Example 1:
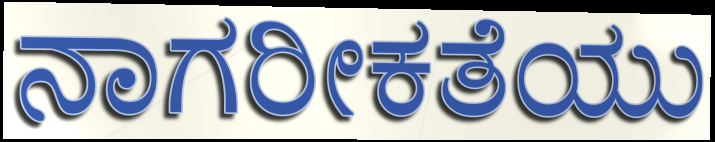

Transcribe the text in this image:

ನಾಗರೀಕತೆಯು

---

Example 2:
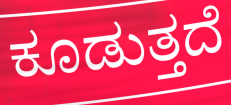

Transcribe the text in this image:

ಕೂಡುತ್ತದೆ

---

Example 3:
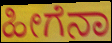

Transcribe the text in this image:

ಹೀಗೆನಾ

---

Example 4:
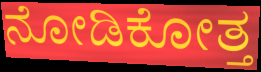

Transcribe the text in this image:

ನೋಡಿಕೋತ್ತ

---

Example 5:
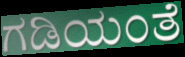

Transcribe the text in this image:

ಗಡಿಯಂತೆ